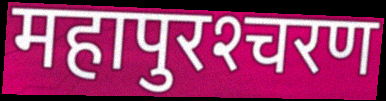
महापुरश्चरण